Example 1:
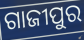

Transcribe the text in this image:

ଗାଜୀପୁର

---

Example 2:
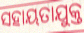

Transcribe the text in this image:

ସହାୟତାଯୁକ୍ତ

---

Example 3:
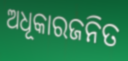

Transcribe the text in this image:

ଅଧୂକାରଜନିତ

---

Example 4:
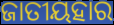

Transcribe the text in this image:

ଜାତୀୟହାର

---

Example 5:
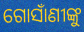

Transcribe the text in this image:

ଗୋସାଁଣୀଙ୍କୁ